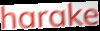
harake